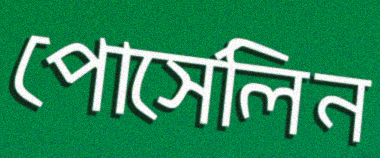
পোর্সেলিন